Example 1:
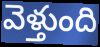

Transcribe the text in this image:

వెళ్తుంది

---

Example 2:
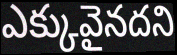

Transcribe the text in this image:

ఎక్కువైనదని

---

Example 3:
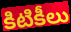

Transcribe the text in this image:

కిటికీలు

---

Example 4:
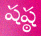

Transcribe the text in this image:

షష్ఠ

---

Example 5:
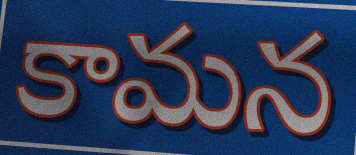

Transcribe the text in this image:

కామన